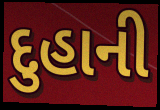
દુહાની